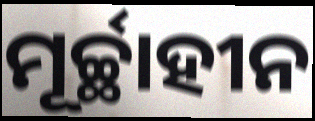
ମୂର୍ଚ୍ଛାହୀନ